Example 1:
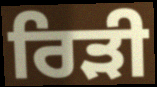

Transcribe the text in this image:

ਰਿੜੀ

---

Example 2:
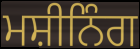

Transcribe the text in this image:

ਮਸ਼ੀਨਿੰਗ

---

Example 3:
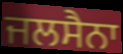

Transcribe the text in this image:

ਜਲਸੈਨਾ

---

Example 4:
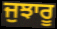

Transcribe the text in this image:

ਜੁਝਾਰੂ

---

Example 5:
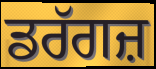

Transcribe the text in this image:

ਡਰੱਗਜ਼